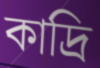
কাদ্রি